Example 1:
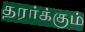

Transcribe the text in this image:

தரர்க்கும்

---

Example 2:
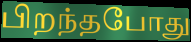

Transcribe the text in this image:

பிறந்தபோது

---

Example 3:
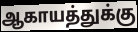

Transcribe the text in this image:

ஆகாயத்துக்கு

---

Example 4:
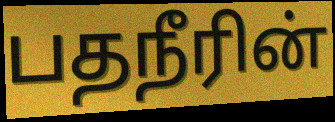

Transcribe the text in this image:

பதநீரின்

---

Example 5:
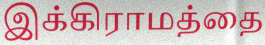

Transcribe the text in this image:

இக்கிராமத்தை